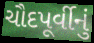
ચૌદપૂર્વીનું